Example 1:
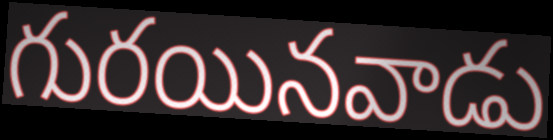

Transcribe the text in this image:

గురయినవాడు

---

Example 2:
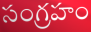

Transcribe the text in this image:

సంగ్రహం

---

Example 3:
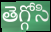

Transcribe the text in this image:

తెగ్గోసి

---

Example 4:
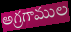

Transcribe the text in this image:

అగ్రగాముల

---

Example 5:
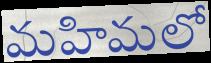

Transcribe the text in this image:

మహిమలో